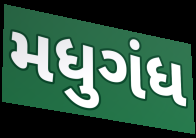
મધુગંધ